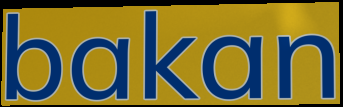
bakan